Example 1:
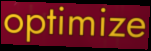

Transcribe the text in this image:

optimize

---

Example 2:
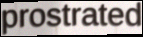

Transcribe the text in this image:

prostrated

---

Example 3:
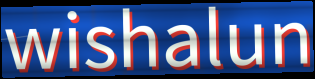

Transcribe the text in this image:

wishalun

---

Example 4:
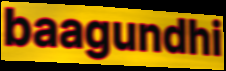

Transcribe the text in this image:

baagundhi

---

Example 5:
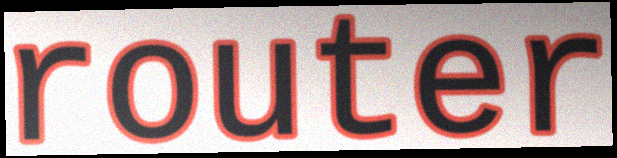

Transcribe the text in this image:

router